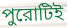
পুরোটিই